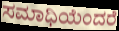
ಸಮಾಧಿಯೆಂದರೆ